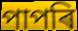
পাপৰি